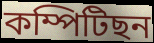
কম্পিটিছন